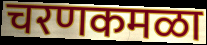
चरणकमळा